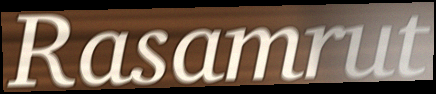
Rasamrut